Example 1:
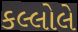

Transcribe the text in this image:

કલ્લોલે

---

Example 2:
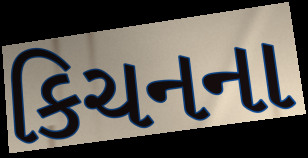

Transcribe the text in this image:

કિચનના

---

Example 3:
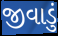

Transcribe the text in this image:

જીવાડું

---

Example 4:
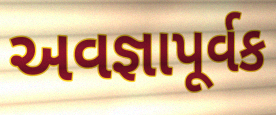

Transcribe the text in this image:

અવજ્ઞાપૂર્વક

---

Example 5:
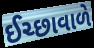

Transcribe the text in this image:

ઈચ્છાવાળે